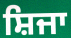
ਸ਼ਿਜਾ